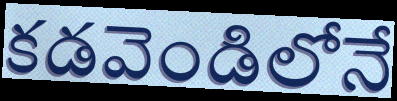
కడవెండిలోనే